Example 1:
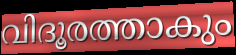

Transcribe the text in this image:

വിദൂരത്താകും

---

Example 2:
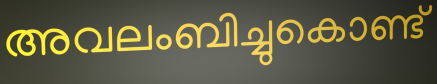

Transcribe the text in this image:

അവലംബിച്ചുകൊണ്ട്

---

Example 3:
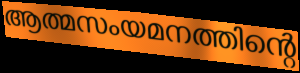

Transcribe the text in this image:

ആത്മസംയമനത്തിന്റെ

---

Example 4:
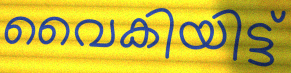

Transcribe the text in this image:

വൈകിയിട്ട്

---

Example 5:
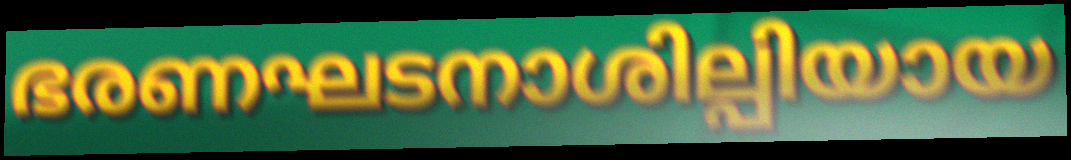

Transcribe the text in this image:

ഭരണഘടനാശില്പിയായ